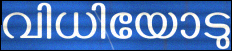
വിധിയോടു